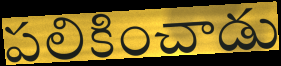
పలికించాడు